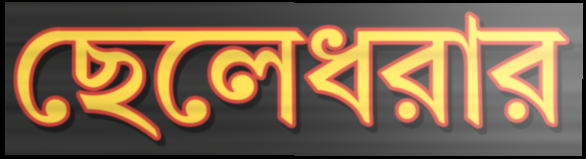
ছেলেধরার